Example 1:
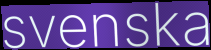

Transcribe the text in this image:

svenska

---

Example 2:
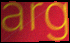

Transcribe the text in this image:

arg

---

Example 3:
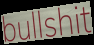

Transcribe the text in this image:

bullshit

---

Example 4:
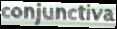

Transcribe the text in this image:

conjunctiva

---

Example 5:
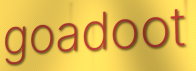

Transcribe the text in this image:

goadoot